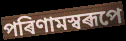
পৰিণামস্বৰূপে